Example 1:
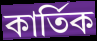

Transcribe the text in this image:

কাৰ্তিক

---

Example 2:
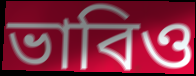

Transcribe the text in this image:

ভাবিও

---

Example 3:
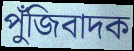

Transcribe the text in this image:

পুঁজিবাদক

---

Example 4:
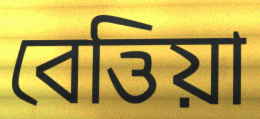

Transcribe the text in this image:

বেত্তিয়া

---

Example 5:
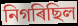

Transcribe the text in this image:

নিগৰিছিল